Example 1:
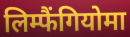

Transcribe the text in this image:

लिम्फैंगियोमा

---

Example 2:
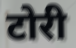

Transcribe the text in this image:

टोरी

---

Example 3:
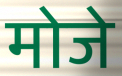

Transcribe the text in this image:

मोजे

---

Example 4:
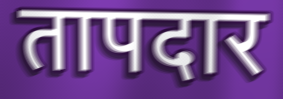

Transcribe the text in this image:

तापदार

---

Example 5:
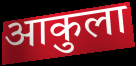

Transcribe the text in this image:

आकुला